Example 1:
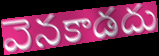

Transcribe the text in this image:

వెనకాడదు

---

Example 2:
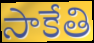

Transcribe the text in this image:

సాకేతి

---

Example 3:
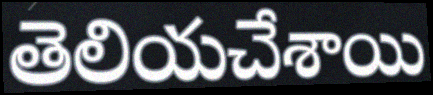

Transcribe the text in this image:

తెలియచేశాయి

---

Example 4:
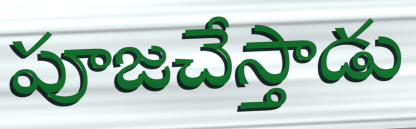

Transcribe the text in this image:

పూజచేస్తాడు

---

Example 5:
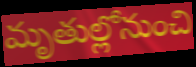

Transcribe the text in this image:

మృతుల్లోనుంచి